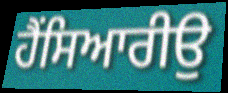
ਹੈਂਸਿਆਰੀਉ